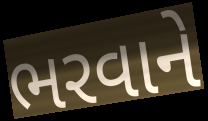
ભરવાને